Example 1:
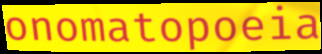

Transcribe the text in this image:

onomatopoeia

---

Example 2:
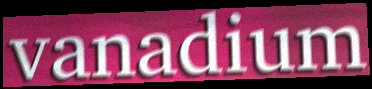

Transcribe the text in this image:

vanadium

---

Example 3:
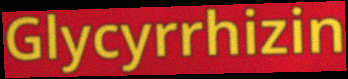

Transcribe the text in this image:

Glycyrrhizin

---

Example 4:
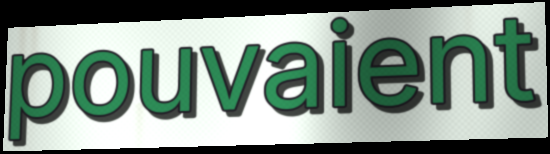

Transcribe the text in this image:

pouvaient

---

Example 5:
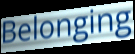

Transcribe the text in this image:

Belonging